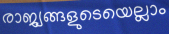
രാജ്യങ്ങളുടെയെല്ലാം